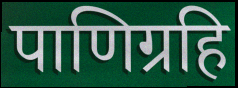
पाणिग्रहि